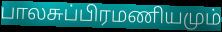
பாலசுப்பிரமணியமும்